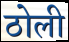
ठोली